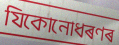
যিকোনোধৰণৰ